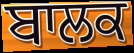
ਬਾਲਕ